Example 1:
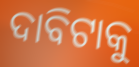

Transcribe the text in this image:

ଦାବିଟାକୁ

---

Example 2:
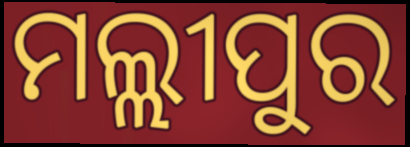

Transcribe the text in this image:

ମଲ୍ଲୀପୁର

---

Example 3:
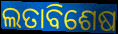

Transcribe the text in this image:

ଲତାବିଶେଷ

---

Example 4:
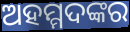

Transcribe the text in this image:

ଅହମ୍ମଦଙ୍କର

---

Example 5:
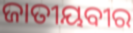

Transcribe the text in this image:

ଜାତୀୟବୀର